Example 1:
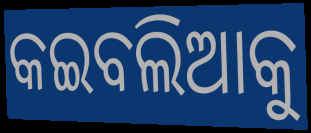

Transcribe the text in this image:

କଇବଲିଆକୁ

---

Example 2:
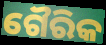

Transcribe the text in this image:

ଗୈରିକ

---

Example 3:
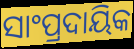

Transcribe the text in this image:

ସାଂପ୍ରଦାୟିକ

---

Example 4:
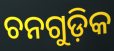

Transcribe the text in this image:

ଚନଗୁଡ଼ିକ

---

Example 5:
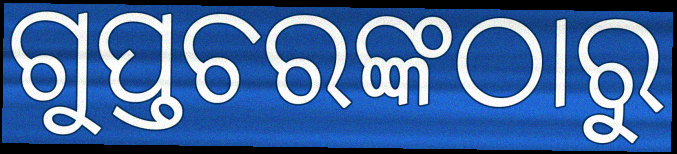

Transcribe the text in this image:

ଗୁପ୍ତଚରଙ୍କଠାରୁ